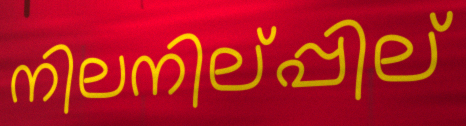
നിലനില്പ്പില്